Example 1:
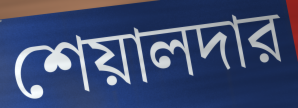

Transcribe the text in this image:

শেয়ালদার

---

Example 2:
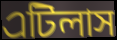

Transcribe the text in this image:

এটিলাস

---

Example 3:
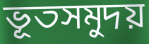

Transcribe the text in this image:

ভূতসমুদয়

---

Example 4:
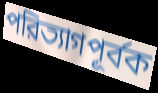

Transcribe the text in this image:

পরিত্যাগপূর্বক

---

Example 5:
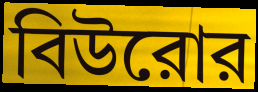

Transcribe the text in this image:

বিউরোর